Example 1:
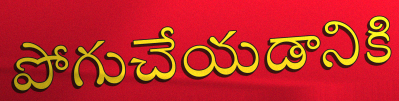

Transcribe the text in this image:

పోగుచేయడానికి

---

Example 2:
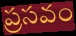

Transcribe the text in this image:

ప్రసవం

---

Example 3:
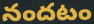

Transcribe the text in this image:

నందటం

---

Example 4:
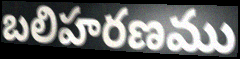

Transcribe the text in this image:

బలిహరణము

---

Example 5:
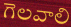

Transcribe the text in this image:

గెలవాలి